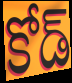
కోడ్